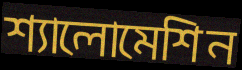
শ্যালোমেশিন